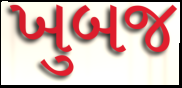
ખુબજ